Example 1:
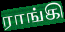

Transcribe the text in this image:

ராங்கி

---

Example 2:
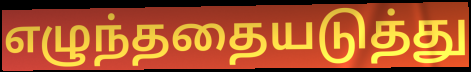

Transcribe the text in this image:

எழுந்ததையடுத்து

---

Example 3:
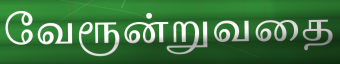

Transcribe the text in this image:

வேரூன்றுவதை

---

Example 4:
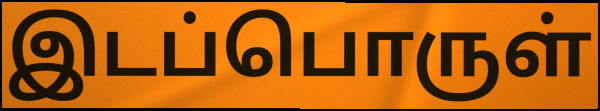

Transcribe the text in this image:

இடப்பொருள்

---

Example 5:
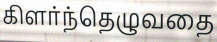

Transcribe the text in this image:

கிளர்ந்தெழுவதை